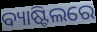
ବ୍ୟାଷ୍ଟିଲରେ